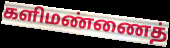
களிமண்ணைத்